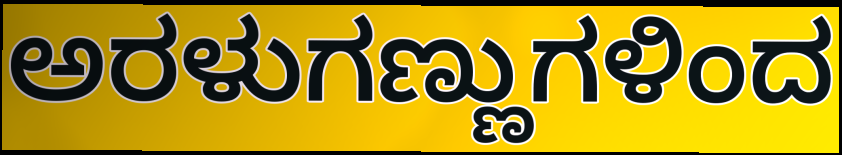
ಅರಳುಗಣ್ಣುಗಳಿಂದ